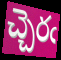
చ్చెరఁ